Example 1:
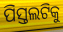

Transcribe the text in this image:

ପିସ୍ତଲଟିକୁ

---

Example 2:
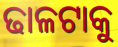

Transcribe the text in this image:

ଢାଳଟାକୁ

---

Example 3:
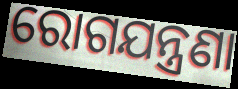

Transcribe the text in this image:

ରୋଗଯନ୍ତ୍ରଣା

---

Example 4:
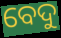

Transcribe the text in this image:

ବେଦୁ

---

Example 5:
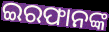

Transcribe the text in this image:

ଇରଫାନଙ୍କ